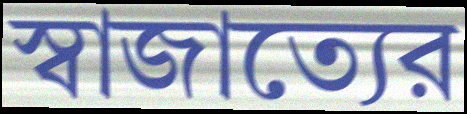
স্বাজাত্যের